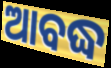
ଆବଦ୍ଧ